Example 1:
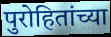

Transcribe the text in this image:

पुरोहितांच्या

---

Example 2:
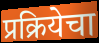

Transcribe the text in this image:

प्रक्रियेचा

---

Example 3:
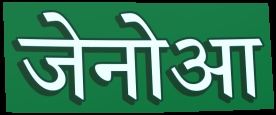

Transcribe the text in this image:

जेनोआ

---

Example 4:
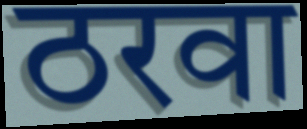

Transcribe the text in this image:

ठरवा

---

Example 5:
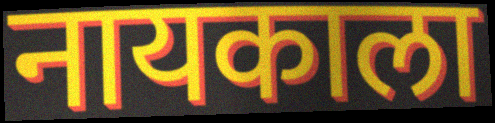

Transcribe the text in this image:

नायकाला